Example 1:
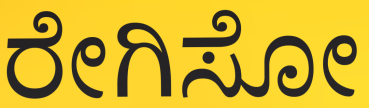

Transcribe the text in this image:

ರೇಗಿಸೋ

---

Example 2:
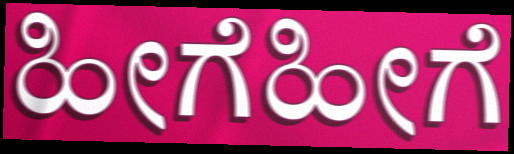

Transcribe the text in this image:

ಹೀಗೆಹೀಗೆ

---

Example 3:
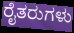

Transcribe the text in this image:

ರೈತರುಗಳು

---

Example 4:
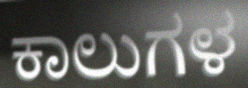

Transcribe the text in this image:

ಕಾಲುಗಳ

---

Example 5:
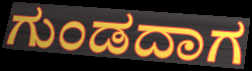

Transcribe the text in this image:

ಗುಂಡದಾಗ